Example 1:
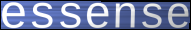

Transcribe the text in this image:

essense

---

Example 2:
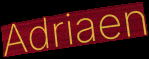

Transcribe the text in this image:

Adriaen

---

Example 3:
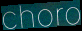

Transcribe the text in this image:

choro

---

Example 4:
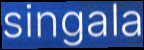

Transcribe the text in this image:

singala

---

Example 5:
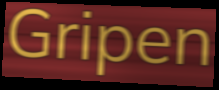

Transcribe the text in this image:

Gripen